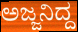
ಅಜ್ಜನಿದ್ದ